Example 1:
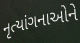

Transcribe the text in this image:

નૃત્યાંગનાઓને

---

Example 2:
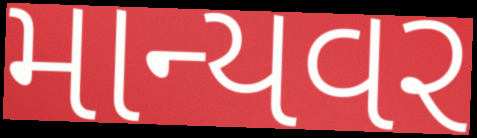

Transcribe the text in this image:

માન્યવર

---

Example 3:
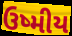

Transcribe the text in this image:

ઉષ્મીય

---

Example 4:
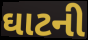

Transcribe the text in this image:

ઘાટની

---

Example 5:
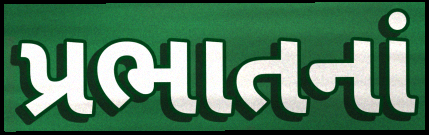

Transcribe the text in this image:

પ્રભાતનાં